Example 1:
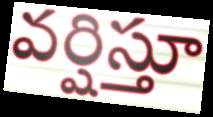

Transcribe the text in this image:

వర్షిస్తూ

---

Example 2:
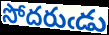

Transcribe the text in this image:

సోదరుఁడు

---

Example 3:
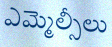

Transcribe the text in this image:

ఎమ్మెల్సీలు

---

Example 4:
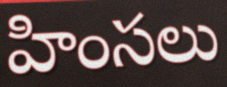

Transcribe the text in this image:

హింసలు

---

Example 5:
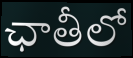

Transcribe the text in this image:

ఛాతీలో